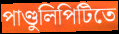
পাণ্ডুলিপিটিতে